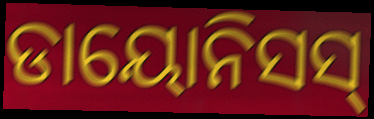
ଡାୟୋନିସସ୍